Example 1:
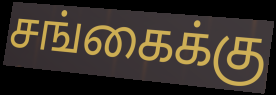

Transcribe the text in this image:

சங்கைக்கு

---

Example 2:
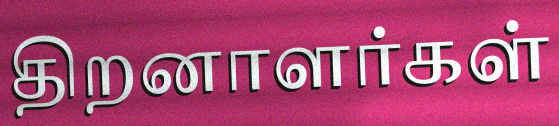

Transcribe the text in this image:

திறனாளர்கள்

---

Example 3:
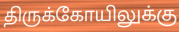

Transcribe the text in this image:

திருக்கோயிலுக்கு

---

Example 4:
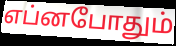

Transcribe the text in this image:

எப்னபோதும்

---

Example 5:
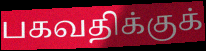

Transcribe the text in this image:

பகவதிக்குக்